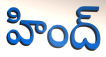
హింద్